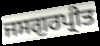
ਜਸਗੁਰਪ੍ਰੀਤ